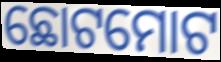
ଛୋଟମୋଟ